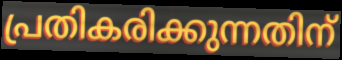
പ്രതികരിക്കുന്നതിന്